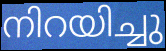
നിറയിച്ചു